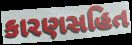
કારણસહિત